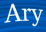
Ary